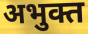
अभुक्त